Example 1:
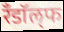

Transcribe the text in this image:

रँडॉल्फ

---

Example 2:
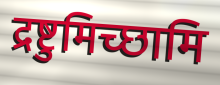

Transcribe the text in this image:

द्रष्टुमिच्छामि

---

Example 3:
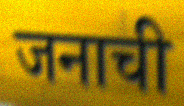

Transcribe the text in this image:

जनाची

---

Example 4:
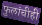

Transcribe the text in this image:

फुलांचीही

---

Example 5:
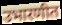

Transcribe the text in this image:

उभारणीत